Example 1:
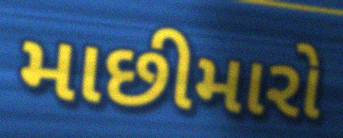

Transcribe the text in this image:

માછીમારો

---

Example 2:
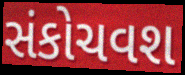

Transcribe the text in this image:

સંકોચવશ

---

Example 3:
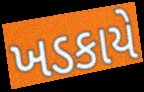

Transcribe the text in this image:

ખડકાયે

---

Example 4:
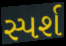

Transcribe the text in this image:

સ્પર્શ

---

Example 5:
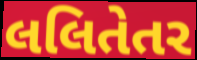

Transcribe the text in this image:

લલિતેતર